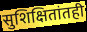
सुशिक्षितांतही